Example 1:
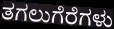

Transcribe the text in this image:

ತಗಲುಗೆರೆಗಳು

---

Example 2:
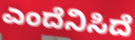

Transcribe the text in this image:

ಎಂದೆನಿಸಿದೆ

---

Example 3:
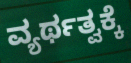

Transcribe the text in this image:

ವ್ಯರ್ಥತ್ವಕ್ಕೆ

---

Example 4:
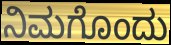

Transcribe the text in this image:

ನಿಮಗೊಂದು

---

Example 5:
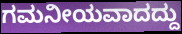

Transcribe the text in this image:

ಗಮನೀಯವಾದದ್ದು